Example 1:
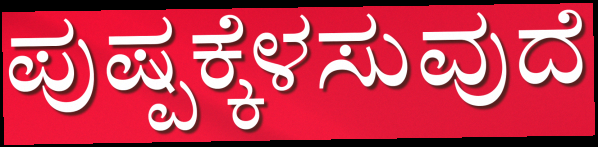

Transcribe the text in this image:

ಪುಷ್ಪಕ್ಕೆಳಸುವುದೆ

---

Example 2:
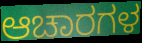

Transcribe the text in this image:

ಆಚಾರಗಳ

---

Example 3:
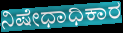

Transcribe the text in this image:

ನಿಷೇಧಾಧಿಕಾರ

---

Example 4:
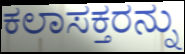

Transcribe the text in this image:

ಕಲಾಸಕ್ತರನ್ನು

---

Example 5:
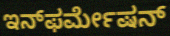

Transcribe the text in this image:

ಇನ್‌ಫರ್ಮೇಷನ್